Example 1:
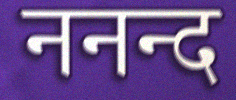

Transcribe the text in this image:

ननन्द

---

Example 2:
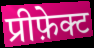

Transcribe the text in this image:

प्रीफ़ेक्ट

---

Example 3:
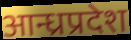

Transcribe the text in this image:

आन्ध्रप्रदेश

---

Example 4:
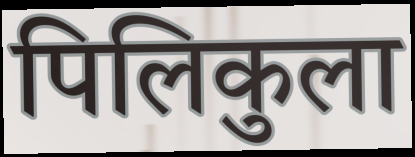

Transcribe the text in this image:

पिलिकुला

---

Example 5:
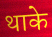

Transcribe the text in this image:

थाके